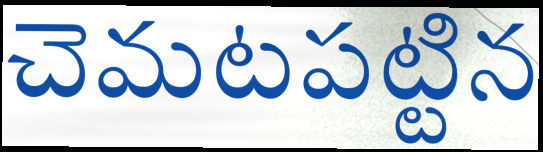
చెమటపట్టిన